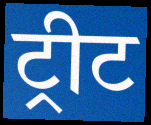
ट्रीट